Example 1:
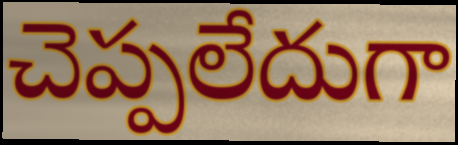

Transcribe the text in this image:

చెప్పలేదుగా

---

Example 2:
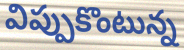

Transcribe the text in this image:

విప్పుకొంటున్న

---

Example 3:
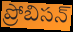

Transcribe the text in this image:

ప్రోబిసన్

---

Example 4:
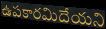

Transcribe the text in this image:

ఉపకారమిదేయని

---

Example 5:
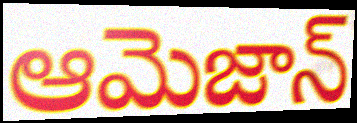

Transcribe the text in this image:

ఆమెజాన్